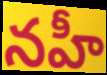
నహీ